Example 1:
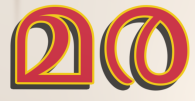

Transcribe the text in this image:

മര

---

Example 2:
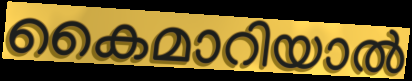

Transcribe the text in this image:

കൈമാറിയാൽ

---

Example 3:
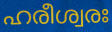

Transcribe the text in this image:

ഹരീശ്വരഃ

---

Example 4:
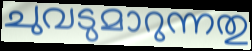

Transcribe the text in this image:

ചുവടുമാറുന്നതു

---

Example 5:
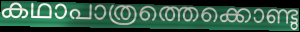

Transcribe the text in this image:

കഥാപാത്രത്തെക്കൊണ്ടു